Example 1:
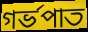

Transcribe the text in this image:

গর্ভপাত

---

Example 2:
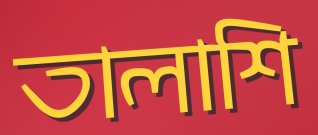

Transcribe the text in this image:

তালাশি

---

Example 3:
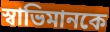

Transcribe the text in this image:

স্বাভিমানকে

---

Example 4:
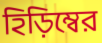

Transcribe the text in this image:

হিড়িম্বের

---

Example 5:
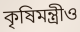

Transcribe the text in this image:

কৃষিমন্ত্রীও